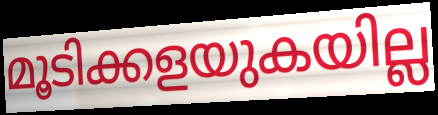
മൂടിക്കളയുകയില്ല